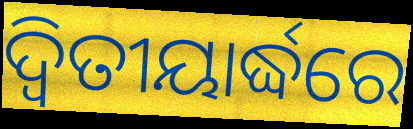
ଦ୍ଵିତୀୟାର୍ଦ୍ଧରେ